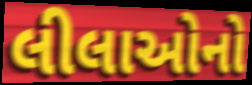
લીલાઓનો